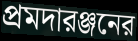
প্রমদারঞ্জনের